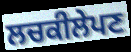
ਲਚਕੀਲੇਪਣ